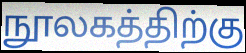
நூலகத்திற்கு